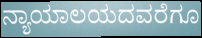
ನ್ಯಾಯಾಲಯದವರೆಗೂ